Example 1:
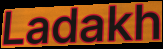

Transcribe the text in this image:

Ladakh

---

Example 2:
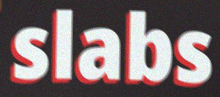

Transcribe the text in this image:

slabs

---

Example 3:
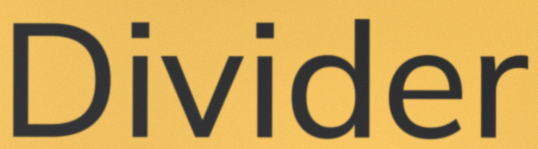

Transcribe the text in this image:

Divider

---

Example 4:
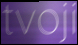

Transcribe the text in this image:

tvoji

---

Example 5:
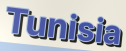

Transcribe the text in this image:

Tunisia